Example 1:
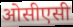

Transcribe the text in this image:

ओसीएसी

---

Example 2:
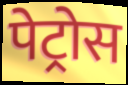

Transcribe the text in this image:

पेट्रोस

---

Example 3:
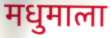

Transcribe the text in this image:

मधुमाला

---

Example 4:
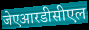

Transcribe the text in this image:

जेएआरडीसीएल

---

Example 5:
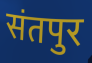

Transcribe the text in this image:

संतपुर